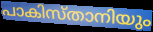
പാകിസ്താനിയും